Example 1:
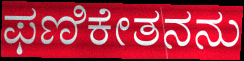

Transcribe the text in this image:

ಫಣಿಕೇತನನು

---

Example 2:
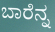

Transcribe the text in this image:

ಬಾರೆನ್ನ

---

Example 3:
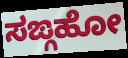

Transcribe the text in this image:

ಸಙ್ಗಹೋ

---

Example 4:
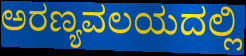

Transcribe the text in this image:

ಅರಣ್ಯವಲಯದಲ್ಲಿ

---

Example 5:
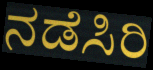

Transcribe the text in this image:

ನಡೆಸಿರಿ